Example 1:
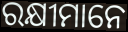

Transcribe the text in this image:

ରକ୍ଷୀମାନେ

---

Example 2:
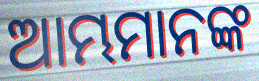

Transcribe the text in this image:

ଆମ୍ଭମାନଙ୍କ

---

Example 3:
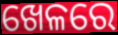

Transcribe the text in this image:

ଖେଳରେ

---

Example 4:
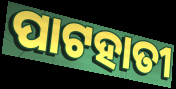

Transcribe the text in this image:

ପାଟହାତୀ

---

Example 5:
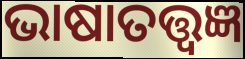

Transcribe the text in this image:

ଭାଷାତତ୍ତ୍ୱଜ୍ଞ